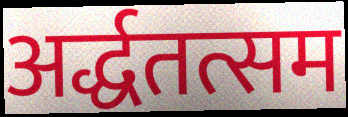
अर्द्धतत्सम